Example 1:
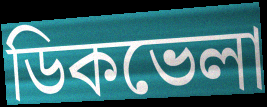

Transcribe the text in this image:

ডিকভেলা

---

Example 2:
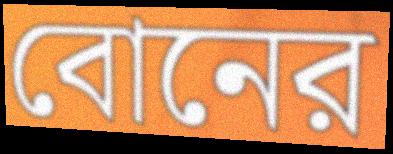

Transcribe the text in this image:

বোনের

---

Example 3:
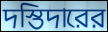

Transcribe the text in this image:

দস্তিদারের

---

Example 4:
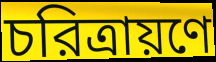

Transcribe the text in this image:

চরিত্রায়ণে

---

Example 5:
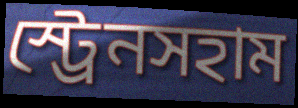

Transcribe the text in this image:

স্ট্রেনসহাম